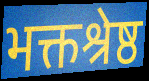
भक्तश्रेष्ठ